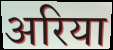
अरिया